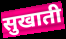
सुखाती